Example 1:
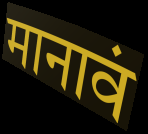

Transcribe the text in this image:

मानावं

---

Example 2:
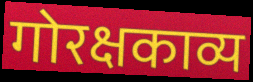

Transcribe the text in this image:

गोरक्षकाव्य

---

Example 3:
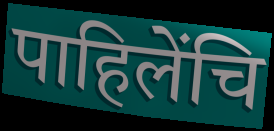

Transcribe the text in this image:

पाहिलेंचि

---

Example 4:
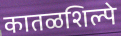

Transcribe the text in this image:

कातळशिल्पे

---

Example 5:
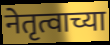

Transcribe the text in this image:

नेतृत्वाच्या